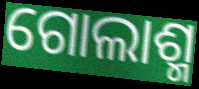
ଗୋଲାଶ୍ମ